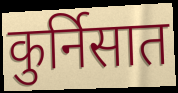
कुर्निसात